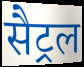
सैट्रल